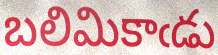
బలిమికాఁడు